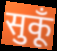
सुकूँ